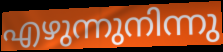
എഴുന്നുനിന്നു